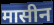
मासीन